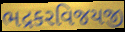
ભદ્રકરવિજયજી